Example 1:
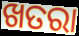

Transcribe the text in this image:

ଖତରା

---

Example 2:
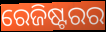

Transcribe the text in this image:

ରେଜିଷ୍ଟରର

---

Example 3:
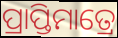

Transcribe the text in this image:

ପ୍ରାପ୍ତିମାତ୍ରେ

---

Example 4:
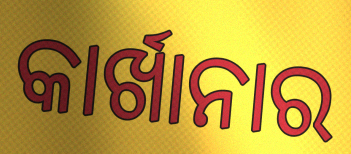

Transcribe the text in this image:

କାର୍ଖାନାର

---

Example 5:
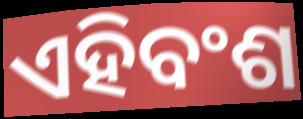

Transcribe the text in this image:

ଏହିବଂଶ